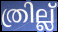
ത്രില്ല്